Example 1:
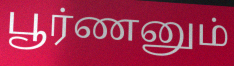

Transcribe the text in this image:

பூர்ணனும்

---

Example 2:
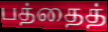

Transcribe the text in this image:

பத்தைத்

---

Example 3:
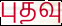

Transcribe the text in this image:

புதவு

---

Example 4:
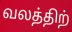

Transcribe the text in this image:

வலத்திற்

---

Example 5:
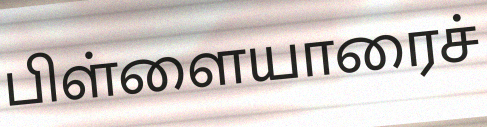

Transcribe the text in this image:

பிள்ளையாரைச்